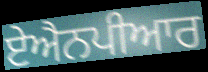
ਏਐਨਪੀਆਰ